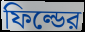
ফিল্ডের